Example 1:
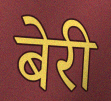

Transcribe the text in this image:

बेरी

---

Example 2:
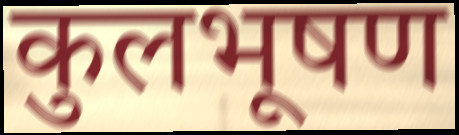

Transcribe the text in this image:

कुलभूषण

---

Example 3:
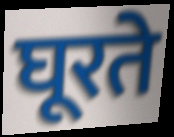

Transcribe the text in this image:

घूरते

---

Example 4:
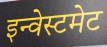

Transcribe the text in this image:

इन्वेस्टमेट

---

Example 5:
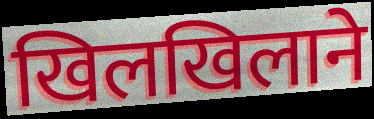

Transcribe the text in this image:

खिलखिलाने